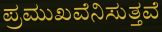
ಪ್ರಮುಖವೆನಿಸುತ್ತವೆ